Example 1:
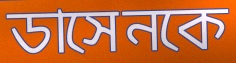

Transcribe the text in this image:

ডাসেনকে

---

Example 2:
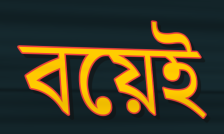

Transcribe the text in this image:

বয়েই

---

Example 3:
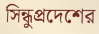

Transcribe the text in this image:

সিন্ধুপ্রদেশের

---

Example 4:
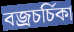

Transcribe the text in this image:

বজ্রচর্চিকা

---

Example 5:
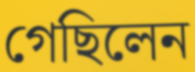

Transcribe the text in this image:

গেছিলেন